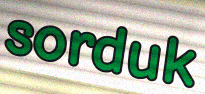
sorduk